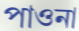
পাওনা